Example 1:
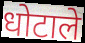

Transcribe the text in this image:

धोटाले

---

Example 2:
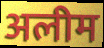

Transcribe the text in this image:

अलीम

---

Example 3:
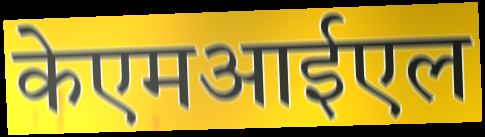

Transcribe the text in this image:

केएमआईएल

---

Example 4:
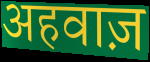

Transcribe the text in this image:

अहवाज़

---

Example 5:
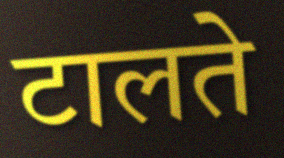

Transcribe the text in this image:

टालते